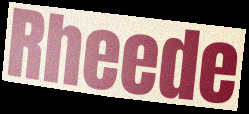
Rheede